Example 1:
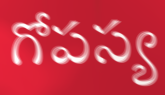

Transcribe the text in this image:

గోపస్య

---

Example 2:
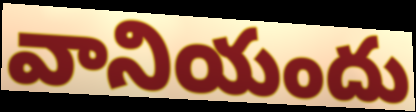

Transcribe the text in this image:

వానియందు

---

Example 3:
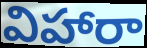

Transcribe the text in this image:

విహారా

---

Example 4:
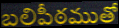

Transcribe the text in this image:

బలిపీఠముతో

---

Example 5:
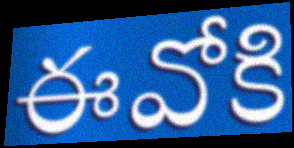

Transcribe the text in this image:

ఈవోకి